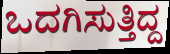
ಒದಗಿಸುತ್ತಿದ್ದ